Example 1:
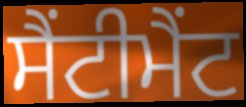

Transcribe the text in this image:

ਸੈਂਟੀਮੈਂਟ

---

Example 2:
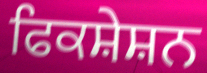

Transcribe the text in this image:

ਫਿਕਸ਼ੇਸ਼ਨ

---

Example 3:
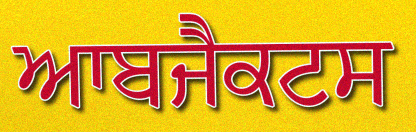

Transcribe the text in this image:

ਆਬਜੈਕਟਸ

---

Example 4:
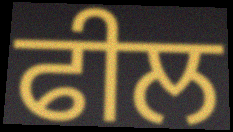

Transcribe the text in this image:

ਫੀਲ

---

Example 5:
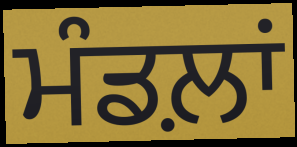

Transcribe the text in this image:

ਮੰਡਲ਼ਾਂ